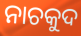
ନାଚକୁଦ